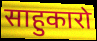
साहुकारो